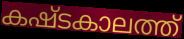
കഷ്ടകാലത്ത്